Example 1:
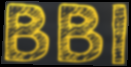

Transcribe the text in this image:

BBI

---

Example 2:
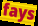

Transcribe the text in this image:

fays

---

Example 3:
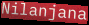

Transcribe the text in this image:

Nilanjana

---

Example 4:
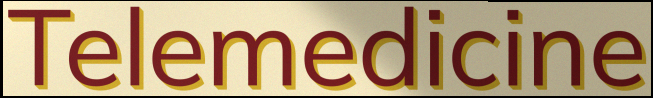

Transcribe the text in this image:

Telemedicine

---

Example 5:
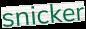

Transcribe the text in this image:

snicker